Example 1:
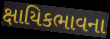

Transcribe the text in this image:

ક્ષાયિકભાવના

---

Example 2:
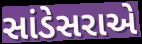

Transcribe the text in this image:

સાંડેસરાએ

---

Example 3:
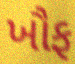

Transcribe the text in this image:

ખૌફ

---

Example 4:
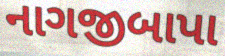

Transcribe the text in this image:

નાગજીબાપા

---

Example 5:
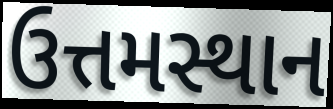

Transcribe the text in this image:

ઉત્તમસ્થાન